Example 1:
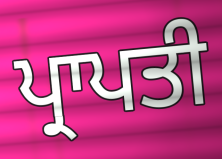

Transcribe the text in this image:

ਪ੍ਰਾਪਤੀ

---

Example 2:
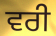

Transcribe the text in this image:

ਵਰੀ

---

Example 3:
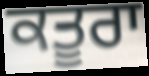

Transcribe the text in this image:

ਕਤੂਰਾ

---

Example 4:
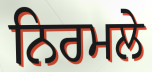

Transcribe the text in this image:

ਨਿਰਮਲੇ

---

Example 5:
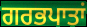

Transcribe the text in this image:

ਗਰਭਪਾਤਾਂ